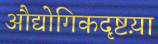
औद्योगिकदृष्टय़ा